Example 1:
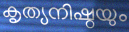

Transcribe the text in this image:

കൃത്യനിഷ്ഠയും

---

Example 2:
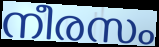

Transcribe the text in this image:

നീരസം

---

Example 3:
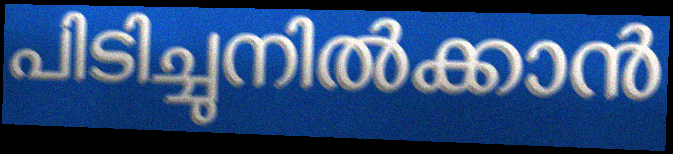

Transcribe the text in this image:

പിടിച്ചുനിൽക്കാൻ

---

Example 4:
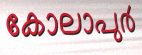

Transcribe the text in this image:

കോലാപുർ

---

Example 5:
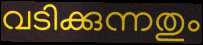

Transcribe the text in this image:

വടിക്കുന്നതും